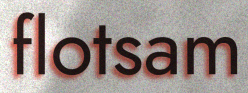
flotsam